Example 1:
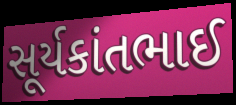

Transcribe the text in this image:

સૂર્યકાંતભાઈ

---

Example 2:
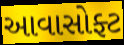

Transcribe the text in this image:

આવાસોફ્ટ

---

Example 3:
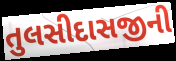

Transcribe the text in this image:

તુલસીદાસજીની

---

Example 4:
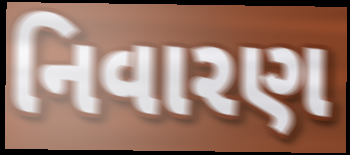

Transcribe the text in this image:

નિવારણ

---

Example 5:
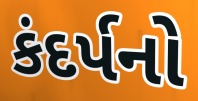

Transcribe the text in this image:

કંદર્પનો